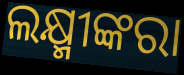
ଲକ୍ଷ୍ମୀଙ୍କରା